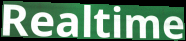
Realtime